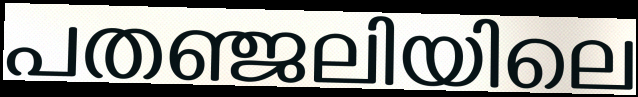
പതഞ്ജലിയിലെ